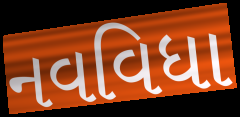
નવવિધા